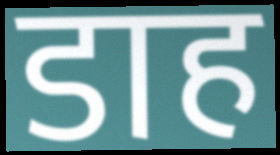
डाह